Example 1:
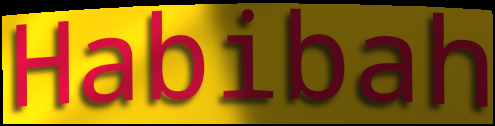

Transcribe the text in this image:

Habibah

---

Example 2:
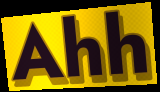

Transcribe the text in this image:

Ahh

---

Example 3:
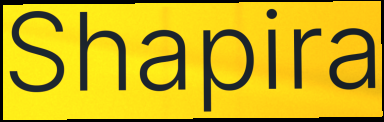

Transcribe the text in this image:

Shapira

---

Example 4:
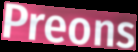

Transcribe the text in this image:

Preons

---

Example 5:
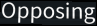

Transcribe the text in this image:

Opposing